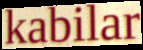
kabilar